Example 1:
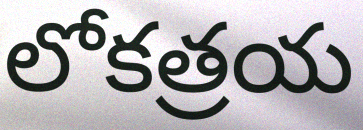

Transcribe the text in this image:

లోకత్రయ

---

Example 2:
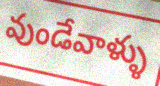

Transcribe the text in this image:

వుండేవాళ్ళు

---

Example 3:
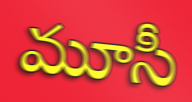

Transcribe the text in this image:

మూసీ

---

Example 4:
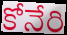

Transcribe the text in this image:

కోనేరి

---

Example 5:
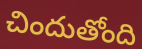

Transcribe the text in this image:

చిందుతోంది